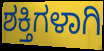
ಶಕ್ತಿಗಳಾಗಿ